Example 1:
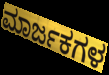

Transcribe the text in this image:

ಮಾರ್ಜಕಗಳ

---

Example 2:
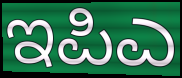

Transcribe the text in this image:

ಇಪಿಎ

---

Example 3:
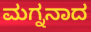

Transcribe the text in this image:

ಮಗ್ನನಾದ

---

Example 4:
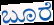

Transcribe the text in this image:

ಬೂರೆ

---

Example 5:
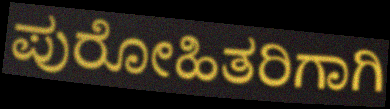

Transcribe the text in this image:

ಪುರೋಹಿತರಿಗಾಗಿ